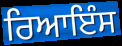
ਰਿਆਇੰਸ